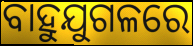
ବାହୁଯୁଗଳରେ